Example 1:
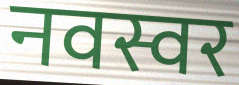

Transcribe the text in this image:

नवस्वर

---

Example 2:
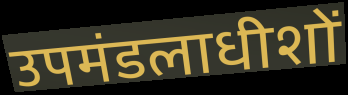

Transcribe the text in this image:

उपमंडलाधीशों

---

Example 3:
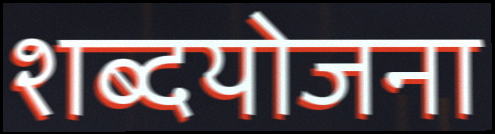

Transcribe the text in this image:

शब्दयोजना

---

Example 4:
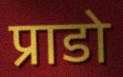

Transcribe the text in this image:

प्राडो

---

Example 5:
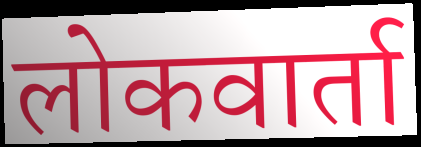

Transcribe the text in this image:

लोकवार्ता